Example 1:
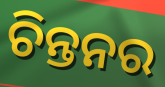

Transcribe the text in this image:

ଚିନ୍ତନର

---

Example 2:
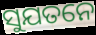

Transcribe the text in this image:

ସୁଯତନେ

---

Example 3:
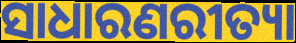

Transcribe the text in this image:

ସାଧାରଣରୀତ୍ୟା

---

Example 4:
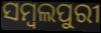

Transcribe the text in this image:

ସମ୍ବଲପୁରୀ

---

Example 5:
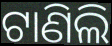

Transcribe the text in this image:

ଟାଣିଲି